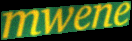
mwene